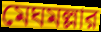
মেঘমল্লার